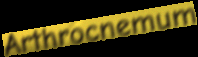
Arthrocnemum